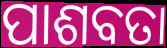
ପାଶବତା